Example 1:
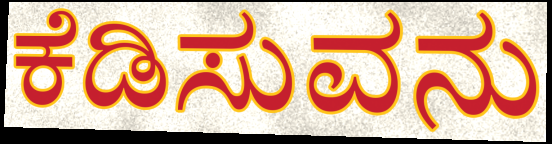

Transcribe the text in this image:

ಕೆಡಿಸುವನು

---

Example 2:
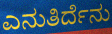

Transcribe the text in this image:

ಎನುತಿರ್ದೆನು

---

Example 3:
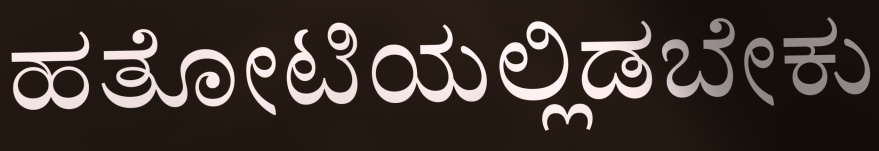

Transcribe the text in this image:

ಹತೋಟಿಯಲ್ಲಿಡಬೇಕು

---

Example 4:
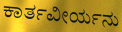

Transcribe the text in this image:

ಕಾರ್ತವೀರ್ಯನು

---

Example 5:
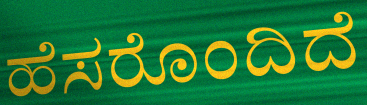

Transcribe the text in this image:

ಹೆಸರೊಂದಿದೆ